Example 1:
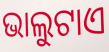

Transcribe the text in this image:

ଭାଲୁଟାଏ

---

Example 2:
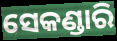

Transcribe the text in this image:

ସେକଣ୍ଡାରି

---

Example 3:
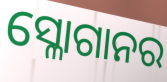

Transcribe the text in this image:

ସ୍ଳୋଗାନର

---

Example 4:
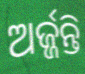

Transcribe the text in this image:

ଅର୍ଜ୍ଜନ୍ତି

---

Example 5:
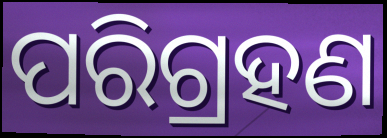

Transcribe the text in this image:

ପରିଗ୍ରହଣ